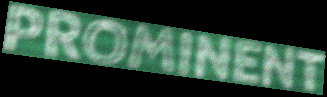
PROMINENT